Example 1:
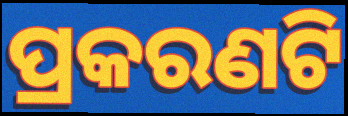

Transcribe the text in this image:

ପ୍ରକରଣଟି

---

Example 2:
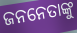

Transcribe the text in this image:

ଜନନେତାଙ୍କୁ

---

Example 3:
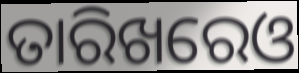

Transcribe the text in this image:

ତାରିଖରେଓ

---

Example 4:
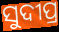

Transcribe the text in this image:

ସୁଦୀପ୍ର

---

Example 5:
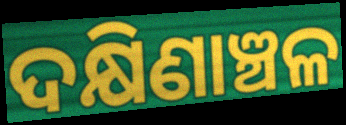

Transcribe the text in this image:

ଦକ୍ଷିଣାଞ୍ଚଳ